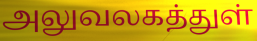
அலுவலகத்துள்